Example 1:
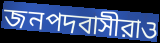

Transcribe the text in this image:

জনপদবাসীরাও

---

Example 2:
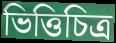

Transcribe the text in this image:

ভিত্তিচিত্র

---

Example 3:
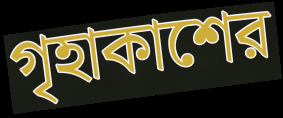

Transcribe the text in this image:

গৃহাকাশের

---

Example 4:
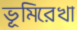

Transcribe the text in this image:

ভূমিরেখা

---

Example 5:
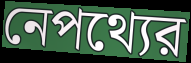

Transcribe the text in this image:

নেপথ্যের